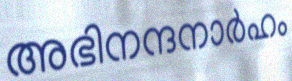
അഭിനന്ദനാർഹം